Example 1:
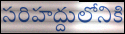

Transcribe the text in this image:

సరిహద్దులోనికి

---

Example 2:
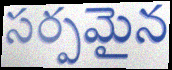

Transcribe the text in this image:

సర్పమైన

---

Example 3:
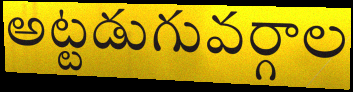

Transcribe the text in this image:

అట్టడుగువర్గాల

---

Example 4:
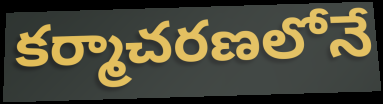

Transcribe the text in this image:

కర్మాచరణలోనే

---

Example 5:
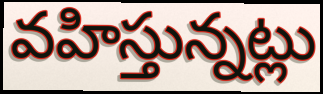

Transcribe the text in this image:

వహిస్తున్నట్లు